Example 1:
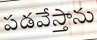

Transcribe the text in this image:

పడవేస్తాను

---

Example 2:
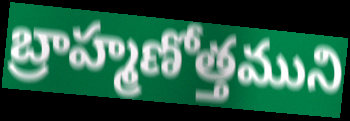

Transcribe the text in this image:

బ్రాహ్మణోత్తముని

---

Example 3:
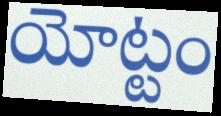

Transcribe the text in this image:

యోట్టం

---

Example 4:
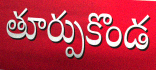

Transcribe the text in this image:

తూర్పుకొండ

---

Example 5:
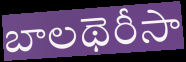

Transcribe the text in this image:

బాలథెరీసా